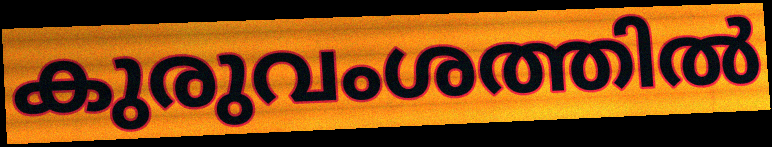
കുരുവംശത്തിൽ